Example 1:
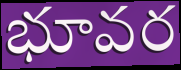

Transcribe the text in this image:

భూవర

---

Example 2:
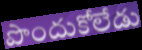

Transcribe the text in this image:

పొందుకోలేడు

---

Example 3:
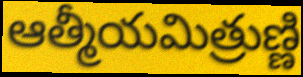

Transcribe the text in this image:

ఆత్మీయమిత్రుణ్ణి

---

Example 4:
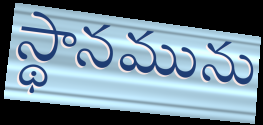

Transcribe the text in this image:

స్థానమును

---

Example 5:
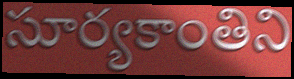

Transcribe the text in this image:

సూర్యకాంతిని